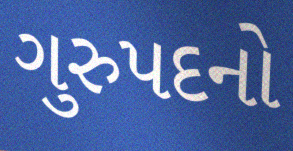
ગુરુપદનો